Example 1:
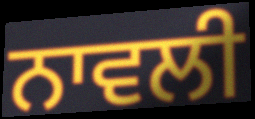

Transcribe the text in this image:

ਨਾਵਲੀ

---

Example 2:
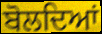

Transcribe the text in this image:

ਬੋਲਦਿਆਂ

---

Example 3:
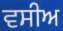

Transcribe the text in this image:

ਵਸੀਅ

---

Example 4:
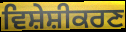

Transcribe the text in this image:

ਵਿਸ਼ੇਸ਼ੀਕਰਣ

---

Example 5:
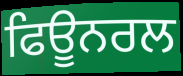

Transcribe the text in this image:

ਫਿਊਨਰਲ